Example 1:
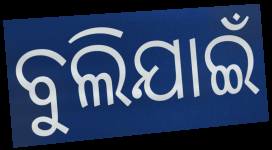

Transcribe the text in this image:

ବୁଲିଯାଇଁ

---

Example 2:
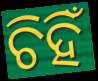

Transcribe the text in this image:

ଚିହିଁ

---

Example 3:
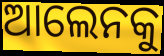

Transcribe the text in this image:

ଆଲେନକୁ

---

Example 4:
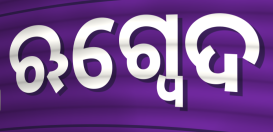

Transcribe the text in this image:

ଋଗ୍ବେଦ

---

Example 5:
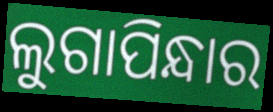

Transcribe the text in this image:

ଲୁଗାପିନ୍ଧାର